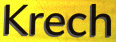
Krech